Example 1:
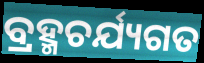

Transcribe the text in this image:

ବ୍ରହ୍ମଚର୍ଯ୍ୟଗତ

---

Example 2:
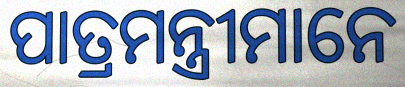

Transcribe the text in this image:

ପାତ୍ରମନ୍ତ୍ରୀମାନେ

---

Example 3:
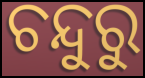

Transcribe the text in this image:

ଚନ୍ଦୁରୁ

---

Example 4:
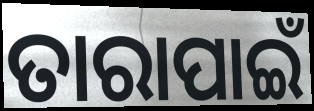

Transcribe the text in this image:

ତାରାପାଇଁ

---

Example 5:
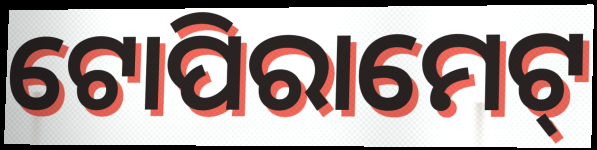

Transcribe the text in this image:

ଟୋପିରାମେଟ୍